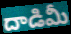
దాడిమీ